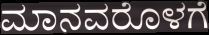
ಮಾನವರೊಳಗೆ